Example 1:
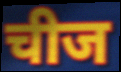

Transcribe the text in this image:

चीज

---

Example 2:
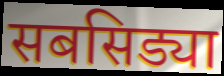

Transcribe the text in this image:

सबसिड्या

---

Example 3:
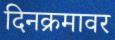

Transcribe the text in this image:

दिनक्रमावर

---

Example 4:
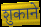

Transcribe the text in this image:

शुकाने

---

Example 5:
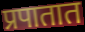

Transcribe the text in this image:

प्रपातात